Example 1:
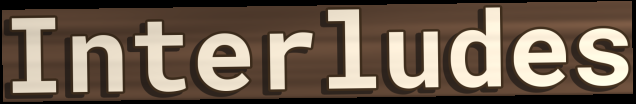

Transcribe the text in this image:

Interludes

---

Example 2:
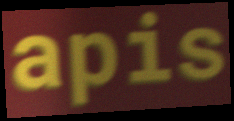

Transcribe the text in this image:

apis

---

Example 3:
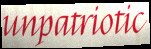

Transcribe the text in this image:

unpatriotic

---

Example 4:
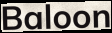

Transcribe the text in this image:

Baloon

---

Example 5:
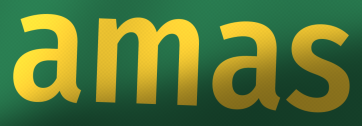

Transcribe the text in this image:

amas